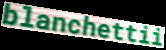
blanchettii